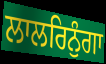
ਲਾਲਰਿਨੁੰਗਾ